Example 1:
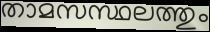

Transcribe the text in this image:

താമസസ്ഥലത്തും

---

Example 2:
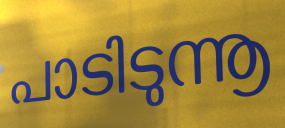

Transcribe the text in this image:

പാടിടുന്നൂ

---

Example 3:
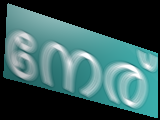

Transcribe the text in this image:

നേര്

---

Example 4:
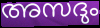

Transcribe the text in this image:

അസദും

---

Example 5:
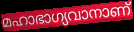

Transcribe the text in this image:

മഹാഭാഗ്യവാനാണ്